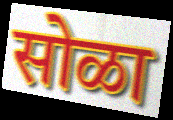
सोळा